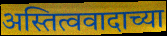
अस्तित्ववादाच्या